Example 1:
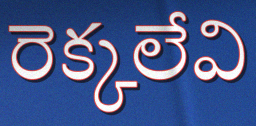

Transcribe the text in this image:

రెక్కలేవి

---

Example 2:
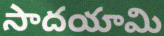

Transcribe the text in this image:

సాదయామి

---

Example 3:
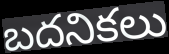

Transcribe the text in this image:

బదనికలు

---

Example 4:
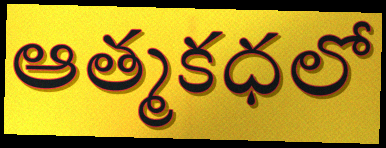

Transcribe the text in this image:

ఆత్మకధలో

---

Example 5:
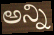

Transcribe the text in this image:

అన్ని